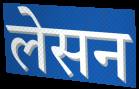
लेसन